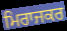
ਮਿਰਾਜਕਰ